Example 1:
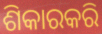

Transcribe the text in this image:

ଶିକାରକରି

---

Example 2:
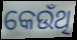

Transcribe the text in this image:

କେଉଁଥି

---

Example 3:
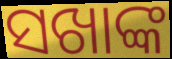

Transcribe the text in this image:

ସଖାଙ୍କ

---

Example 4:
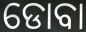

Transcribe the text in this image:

ଡୋବା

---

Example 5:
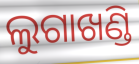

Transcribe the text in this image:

ଲୁଗାଖଣ୍ଡି